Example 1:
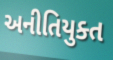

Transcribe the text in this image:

અનીતિયુક્ત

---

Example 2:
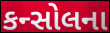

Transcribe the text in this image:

કન્સોલના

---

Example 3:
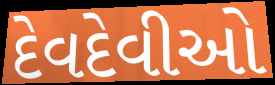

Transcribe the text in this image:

દેવદેવીઓ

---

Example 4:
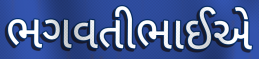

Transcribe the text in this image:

ભગવતીભાઈએ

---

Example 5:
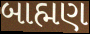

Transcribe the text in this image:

બાહ્મણ